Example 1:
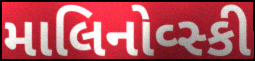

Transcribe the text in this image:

માલિનોવ્સ્કી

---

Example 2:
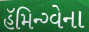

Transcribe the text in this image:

હૅમિન્ગ્વેના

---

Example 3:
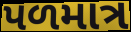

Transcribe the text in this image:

પળમાત્ર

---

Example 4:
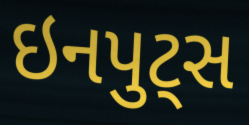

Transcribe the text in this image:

ઇનપુટ્સ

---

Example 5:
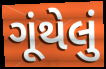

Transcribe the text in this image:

ગૂંથેલું